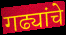
गढ्यांचे